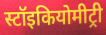
स्टॉइकियोमीट्री